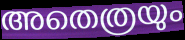
അതെത്രയും